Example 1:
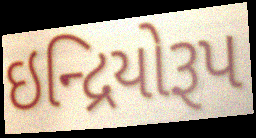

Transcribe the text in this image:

ઇન્દ્રિયોરૂપ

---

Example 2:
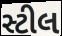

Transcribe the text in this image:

સ્ટીલ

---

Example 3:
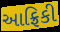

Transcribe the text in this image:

આફ્રિકી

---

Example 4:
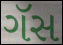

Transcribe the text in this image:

ગૅસ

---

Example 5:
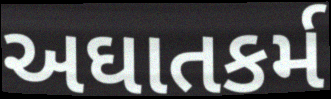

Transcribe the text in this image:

અઘાતકર્મ